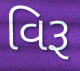
વિરૂ